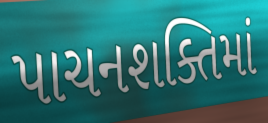
પાચનશક્તિમાં